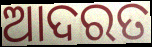
ଆଦରତ